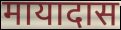
मायादास